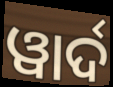
ୱାର୍ଦ